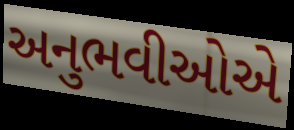
અનુભવીઓએ